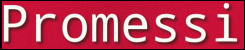
Promessi